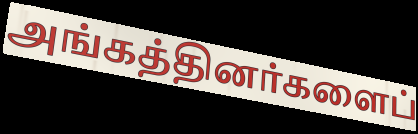
அங்கத்தினர்களைப்